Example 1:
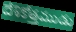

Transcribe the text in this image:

దేశికోత్తముడు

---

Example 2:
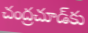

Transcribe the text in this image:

చంద్రచూడ్‌కు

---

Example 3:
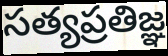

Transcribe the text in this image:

సత్యప్రతిజ్ఞ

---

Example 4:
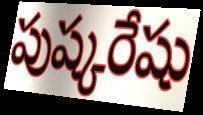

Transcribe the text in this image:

పుష్కరేషు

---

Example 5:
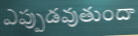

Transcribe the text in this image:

ఎప్పుడవుతుందా